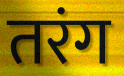
तरंग